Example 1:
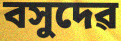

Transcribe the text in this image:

বসুদেৱ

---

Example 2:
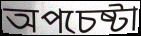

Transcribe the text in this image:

অপচেষ্টা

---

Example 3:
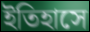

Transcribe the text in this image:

ইতিহাসে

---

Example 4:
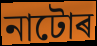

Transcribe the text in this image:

নাটোৰ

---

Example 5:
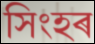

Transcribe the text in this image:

সিংহৰ